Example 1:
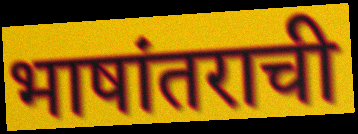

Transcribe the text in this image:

भाषांतराची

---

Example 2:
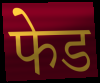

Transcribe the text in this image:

फेड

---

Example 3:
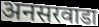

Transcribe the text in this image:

अनसरवाडा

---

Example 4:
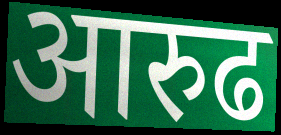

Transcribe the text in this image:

आरुढ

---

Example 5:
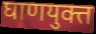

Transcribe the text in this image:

घाणयुक्त